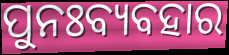
ପୁନଃବ୍ୟବହାର